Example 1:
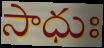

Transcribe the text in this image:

సాధుః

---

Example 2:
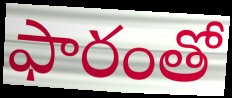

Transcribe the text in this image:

ఫారంతో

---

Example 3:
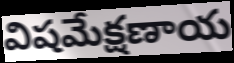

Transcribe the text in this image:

విషమేక్షణాయ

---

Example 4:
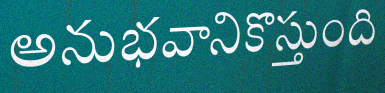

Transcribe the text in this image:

అనుభవానికొస్తుంది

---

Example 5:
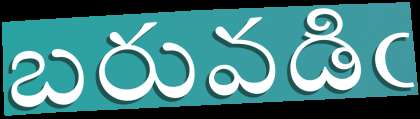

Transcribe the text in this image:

బరువడిఁ